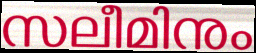
സലീമിനും